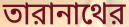
তারানাথের